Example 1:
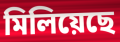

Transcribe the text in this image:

মিলিয়েছে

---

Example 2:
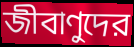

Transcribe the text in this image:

জীবাণুদের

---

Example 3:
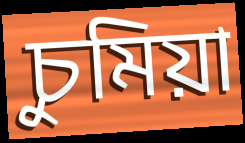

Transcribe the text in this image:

চুমিয়া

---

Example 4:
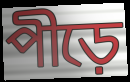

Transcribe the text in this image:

পীড়ে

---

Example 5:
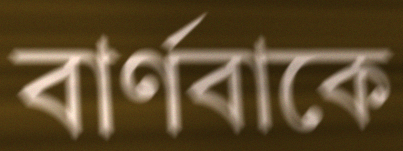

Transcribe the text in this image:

বার্ণবাকে